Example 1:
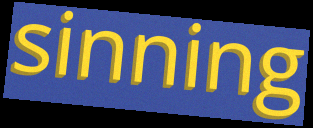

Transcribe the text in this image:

sinning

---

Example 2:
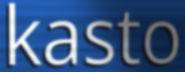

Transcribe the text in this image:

kasto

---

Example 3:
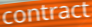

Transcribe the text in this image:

contract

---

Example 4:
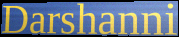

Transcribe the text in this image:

Darshanni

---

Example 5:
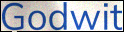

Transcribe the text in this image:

Godwit